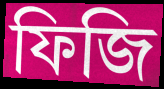
ফিজি